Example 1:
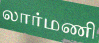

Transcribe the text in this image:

லார்மணி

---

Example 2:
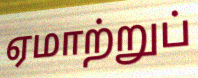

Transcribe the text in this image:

ஏமாற்றுப்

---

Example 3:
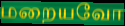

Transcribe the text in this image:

மறையவோ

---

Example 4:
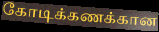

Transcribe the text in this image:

கோடிக்கணக்கான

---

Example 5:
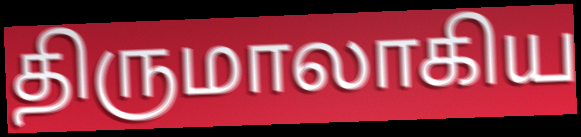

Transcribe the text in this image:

திருமாலாகிய